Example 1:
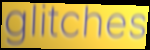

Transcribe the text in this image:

glitches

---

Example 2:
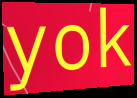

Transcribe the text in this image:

yok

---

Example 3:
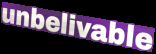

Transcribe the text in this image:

unbelivable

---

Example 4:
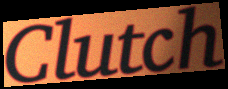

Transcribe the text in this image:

Clutch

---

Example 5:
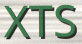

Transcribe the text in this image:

XTS